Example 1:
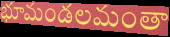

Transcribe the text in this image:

భూమండలమంతా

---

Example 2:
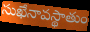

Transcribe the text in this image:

సుఖేనావస్థాతుం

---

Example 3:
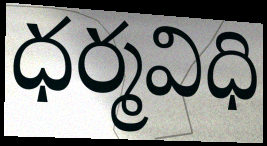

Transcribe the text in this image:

ధర్మవిధి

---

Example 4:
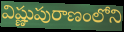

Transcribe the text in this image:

విష్ణుపురాణంలోని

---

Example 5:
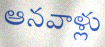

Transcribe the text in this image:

ఆనవాళ్లు